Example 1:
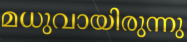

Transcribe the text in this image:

മധുവായിരുന്നു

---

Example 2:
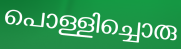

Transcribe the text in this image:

പൊള്ളിച്ചൊരു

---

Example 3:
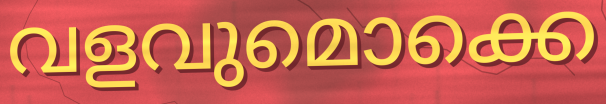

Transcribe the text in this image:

വളവുമൊക്കെ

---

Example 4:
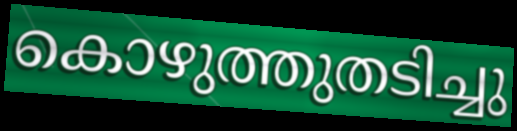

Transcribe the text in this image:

കൊഴുത്തുതടിച്ചു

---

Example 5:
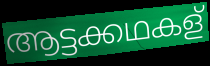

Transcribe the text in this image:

ആട്ടക്കഥകള്